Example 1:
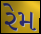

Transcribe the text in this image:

રેમ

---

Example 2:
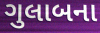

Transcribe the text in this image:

ગુલાબના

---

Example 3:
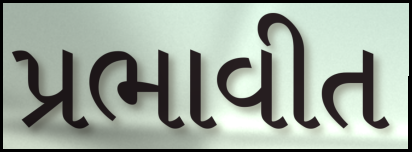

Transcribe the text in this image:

પ્રભાવીત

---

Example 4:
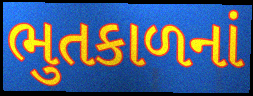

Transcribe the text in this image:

ભુતકાળનાં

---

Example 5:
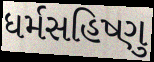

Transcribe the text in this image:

ધર્મસહિષ્ણુ